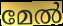
മേൽ